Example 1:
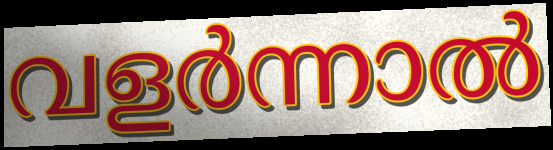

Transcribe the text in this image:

വളർന്നാൽ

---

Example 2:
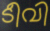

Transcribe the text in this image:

ടീവി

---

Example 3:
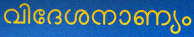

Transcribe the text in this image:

വിദേശനാണ്യം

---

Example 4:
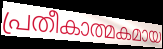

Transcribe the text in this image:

പ്രതീകാത്മകമായ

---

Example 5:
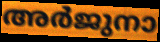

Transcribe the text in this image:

അർജുനാ